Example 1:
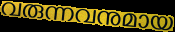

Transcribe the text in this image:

വരുന്നവനുമായ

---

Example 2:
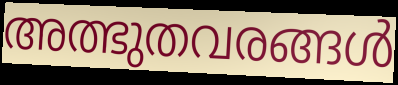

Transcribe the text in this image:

അത്ഭുതവരങ്ങൾ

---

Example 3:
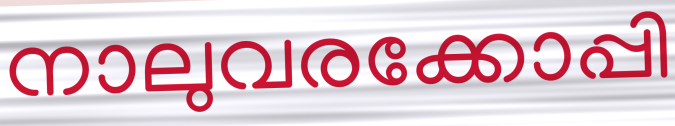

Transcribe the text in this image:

നാലുവരക്കോപ്പി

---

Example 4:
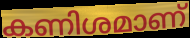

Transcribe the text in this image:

കണിശമാണ്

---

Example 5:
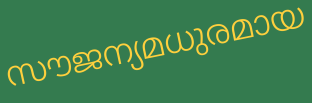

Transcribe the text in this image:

സൗജന്യമധുരമായ